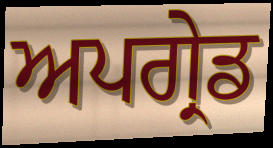
ਅਪਗ੍ਰੇਡ